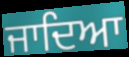
ਜਾਦਿਆ